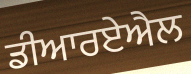
ਡੀਆਰਏਐਲ